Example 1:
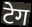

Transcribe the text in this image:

टेग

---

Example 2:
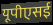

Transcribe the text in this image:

यूपीएसई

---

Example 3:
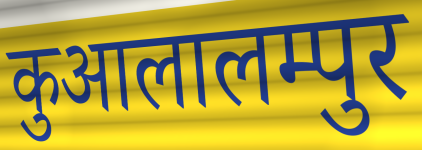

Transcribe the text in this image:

कुआलालम्पुर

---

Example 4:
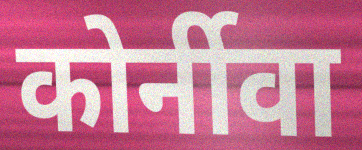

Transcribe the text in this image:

कोर्नीवा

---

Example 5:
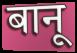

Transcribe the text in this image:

बानू